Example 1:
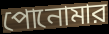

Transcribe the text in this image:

পোনোমার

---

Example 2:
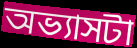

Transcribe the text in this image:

অভ্যাসটা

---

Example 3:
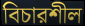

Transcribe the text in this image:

বিচারশীল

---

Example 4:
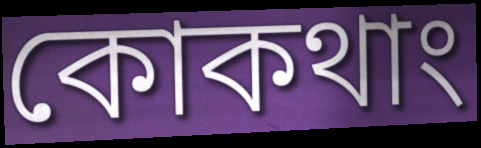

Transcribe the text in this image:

কোকথাং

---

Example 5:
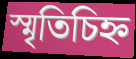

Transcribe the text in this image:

স্মৃতিচিহ্ন